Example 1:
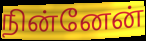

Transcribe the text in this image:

நின்னேன்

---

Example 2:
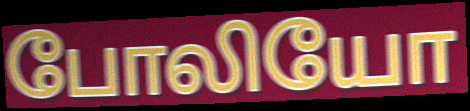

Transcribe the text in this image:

போலியோ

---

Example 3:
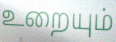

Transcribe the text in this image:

உறையும்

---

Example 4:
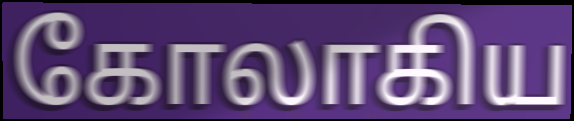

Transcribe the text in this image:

கோலாகிய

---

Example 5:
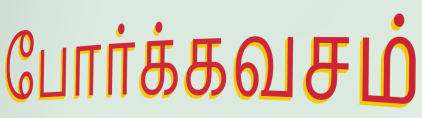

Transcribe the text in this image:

போர்க்கவசம்